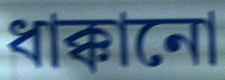
ধাক্কানো